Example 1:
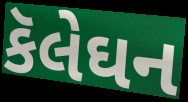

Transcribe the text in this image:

કૅલેઘન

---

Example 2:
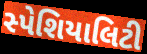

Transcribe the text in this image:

સ્પેશિયાલિટી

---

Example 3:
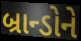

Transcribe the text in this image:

બ્રાન્ડોને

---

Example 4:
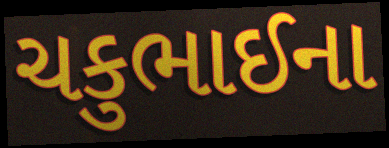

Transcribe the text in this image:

ચકુભાઈના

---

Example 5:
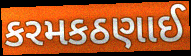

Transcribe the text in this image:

કરમકઠણાઈ